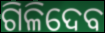
ଗିଳିଦେବ